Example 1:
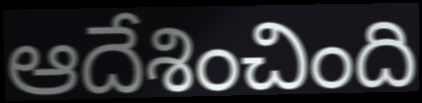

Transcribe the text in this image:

ఆదేశించింది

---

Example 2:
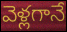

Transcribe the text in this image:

వెళ్లగానే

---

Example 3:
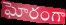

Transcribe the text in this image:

ఘోరంగా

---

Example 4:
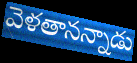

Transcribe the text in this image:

వెళతానన్నాడు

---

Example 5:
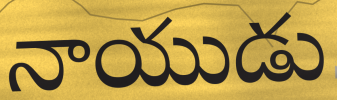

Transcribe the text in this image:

నాయుడు